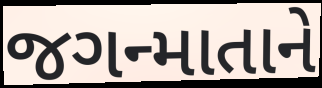
જગન્માતાને